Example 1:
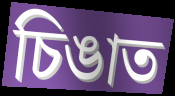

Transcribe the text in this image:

চিঙাত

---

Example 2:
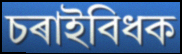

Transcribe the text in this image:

চৰাইবিধক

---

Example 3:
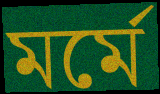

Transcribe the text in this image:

মৰ্মে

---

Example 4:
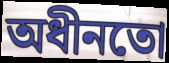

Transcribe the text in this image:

অধীনতো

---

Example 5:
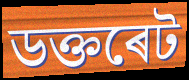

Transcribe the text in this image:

ডক্তৰেট